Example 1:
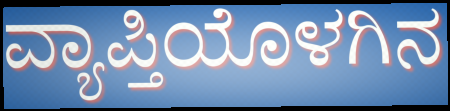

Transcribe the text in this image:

ವ್ಯಾಪ್ತಿಯೊಳಗಿನ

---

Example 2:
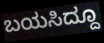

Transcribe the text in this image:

ಬಯಸಿದ್ದೂ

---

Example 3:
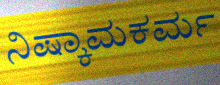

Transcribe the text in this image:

ನಿಷ್ಕಾಮಕರ್ಮ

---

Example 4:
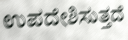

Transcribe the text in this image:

ಉಪದೇಶಿಸುತ್ತದೆ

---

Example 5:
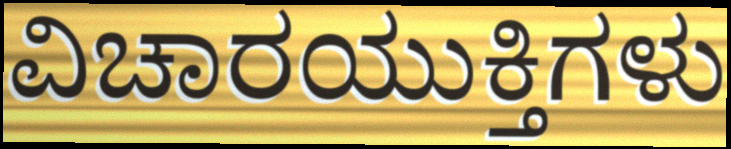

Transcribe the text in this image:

ವಿಚಾರಯುಕ್ತಿಗಳು